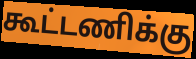
கூட்டணிக்கு